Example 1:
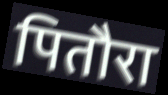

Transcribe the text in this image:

पितौरा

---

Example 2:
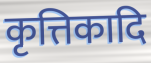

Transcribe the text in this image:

कृत्तिकादि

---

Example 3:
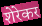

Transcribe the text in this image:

शेरेकर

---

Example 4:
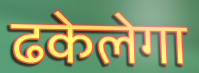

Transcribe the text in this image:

ढकेलेगा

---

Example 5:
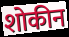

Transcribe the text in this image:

शोकीन